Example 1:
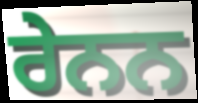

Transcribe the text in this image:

ਰੇਨਨ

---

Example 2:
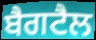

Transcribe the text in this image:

ਬੈਗਟੈਲ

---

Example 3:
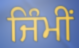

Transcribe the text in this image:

ਜਿੰਮੀਂ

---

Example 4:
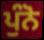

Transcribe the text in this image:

ਪੁੰਨੋ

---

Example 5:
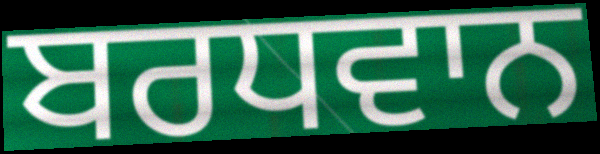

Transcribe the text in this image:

ਬਰਧਵਾਨ